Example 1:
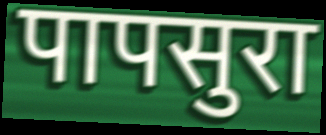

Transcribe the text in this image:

पापसुरा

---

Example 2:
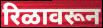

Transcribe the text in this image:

रिळावरून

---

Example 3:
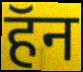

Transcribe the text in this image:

हॅन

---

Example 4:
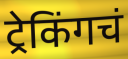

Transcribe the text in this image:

ट्रेकिंगचं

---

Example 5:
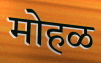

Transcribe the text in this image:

मोहळ